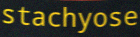
stachyose